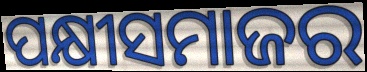
ପକ୍ଷୀସମାଜର